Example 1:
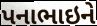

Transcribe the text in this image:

પનાભાઇને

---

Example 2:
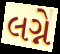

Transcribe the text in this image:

લગ્ને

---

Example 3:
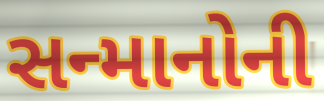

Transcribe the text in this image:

સન્માનોની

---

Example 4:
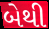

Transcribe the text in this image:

બેથી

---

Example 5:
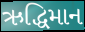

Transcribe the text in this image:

ઋદ્ધિમાન